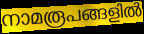
നാമരൂപങ്ങളിൽ